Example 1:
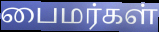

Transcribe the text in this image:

பைமர்கள்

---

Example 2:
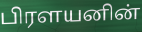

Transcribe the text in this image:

பிரளயனின்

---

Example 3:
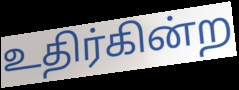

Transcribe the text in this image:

உதிர்கின்ற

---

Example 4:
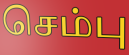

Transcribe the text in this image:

செம்பு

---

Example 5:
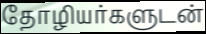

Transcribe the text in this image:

தோழியர்களுடன்